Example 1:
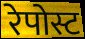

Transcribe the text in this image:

रेपोस्ट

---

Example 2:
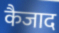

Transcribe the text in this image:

कैजाद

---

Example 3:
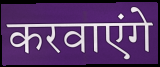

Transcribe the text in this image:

करवाएंगे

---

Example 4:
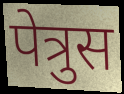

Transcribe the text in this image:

पेत्रुस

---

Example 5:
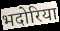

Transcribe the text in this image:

भदोरिया